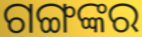
ଗଙ୍ଗଙ୍କର